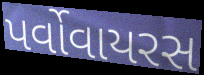
પર્વોવાયરસ